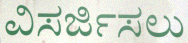
ವಿಸರ್ಜಿಸಲು